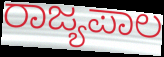
ರಾಜ್ಯಪಾಲ